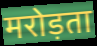
मरोड़ता